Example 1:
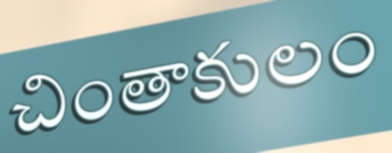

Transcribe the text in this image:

చింతాకులం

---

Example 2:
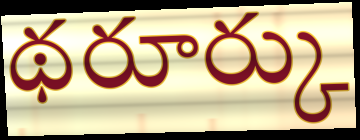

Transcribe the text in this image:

థరూర్కు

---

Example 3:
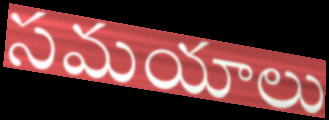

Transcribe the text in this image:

సమయాలు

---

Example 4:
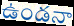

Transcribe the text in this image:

ఉండనా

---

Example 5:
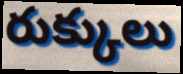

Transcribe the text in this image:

రుక్కులు